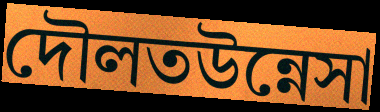
দৌলতউন্নেসা